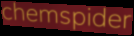
chemspider